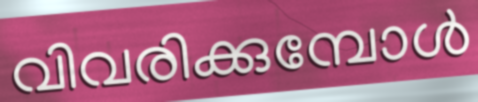
വിവരിക്കുമ്പോൾ